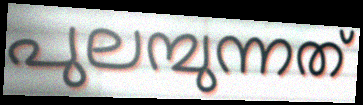
പുലമ്പുന്നത്